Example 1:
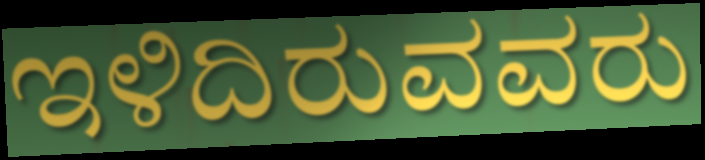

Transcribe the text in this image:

ಇಳಿದಿರುವವರು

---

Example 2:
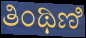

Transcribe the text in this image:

ತಿಂಥಿಣಿ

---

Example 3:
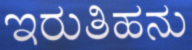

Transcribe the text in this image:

ಇರುತಿಹನು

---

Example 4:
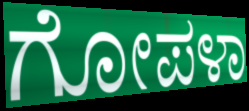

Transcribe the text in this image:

ಗೋಪಳಾ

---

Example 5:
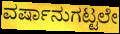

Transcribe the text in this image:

ವರ್ಷಾನುಗಟ್ಟಲೇ